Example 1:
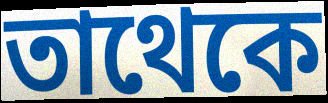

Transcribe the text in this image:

তাথেকে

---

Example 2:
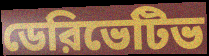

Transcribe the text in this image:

ডেরিভেটিভ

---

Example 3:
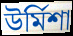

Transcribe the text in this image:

উর্মিশা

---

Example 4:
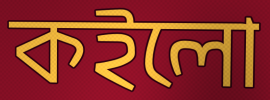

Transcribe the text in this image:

কইলো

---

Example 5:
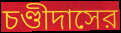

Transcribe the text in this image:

চণ্ডীদাসের